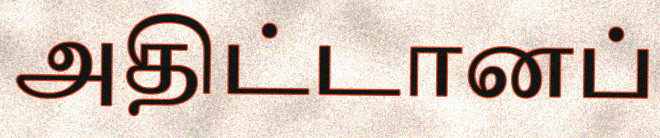
அதிட்டானப்